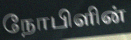
நோபிளின்